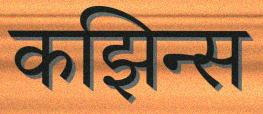
कझिन्स